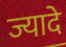
ज्यादे